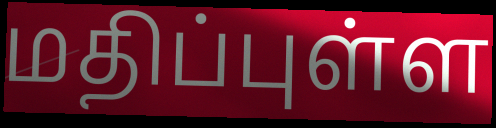
மதிப்புள்ள